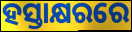
ହସ୍ତାକ୍ଷରରେ